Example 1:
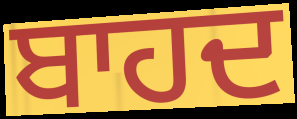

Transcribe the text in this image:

ਬਾਹਦ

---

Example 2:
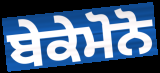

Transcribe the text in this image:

ਬੇਕੇਮੋਨੋ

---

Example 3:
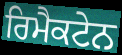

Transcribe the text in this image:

ਰਿਮੈਕਟੇਨ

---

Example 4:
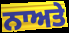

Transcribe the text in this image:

ਨਾਅਤੇ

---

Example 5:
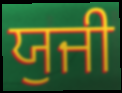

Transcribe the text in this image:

ਯੁਜੀ